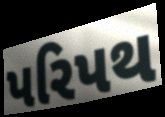
પરિપથ